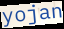
yojan